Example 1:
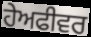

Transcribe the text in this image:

ਹੇਅਫੀਵਰ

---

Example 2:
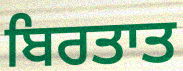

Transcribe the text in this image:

ਬਿਰਤਾਤ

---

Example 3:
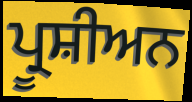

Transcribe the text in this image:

ਪ੍ਰੂਸ਼ੀਅਨ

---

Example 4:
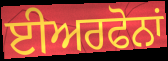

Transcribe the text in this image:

ਈਅਰਫੋਨਾਂ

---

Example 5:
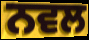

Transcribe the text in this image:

ਨਵਲ